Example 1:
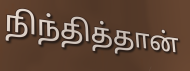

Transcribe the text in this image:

நிந்தித்தான்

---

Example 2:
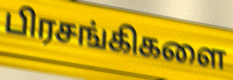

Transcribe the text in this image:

பிரசங்கிகளை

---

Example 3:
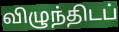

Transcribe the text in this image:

விழுந்திடப்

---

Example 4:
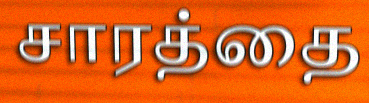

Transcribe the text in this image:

சாரத்தை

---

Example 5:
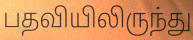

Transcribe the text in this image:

பதவியிலிருந்து